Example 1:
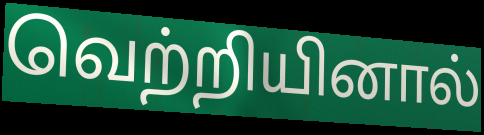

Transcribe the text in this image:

வெற்றியினால்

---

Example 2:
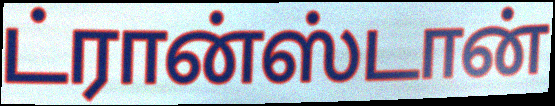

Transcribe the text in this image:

ட்ரான்ஸ்டான்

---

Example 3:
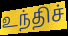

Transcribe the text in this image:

உந்திச்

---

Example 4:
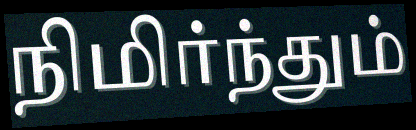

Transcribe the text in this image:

நிமிர்ந்தும்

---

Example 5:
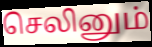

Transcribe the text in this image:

செலினும்